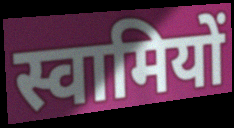
स्वामियों